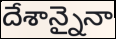
దేశాన్నైనా